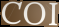
COI